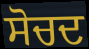
ਸੋਚਦ